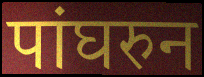
पांघरुन